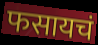
फसायचं